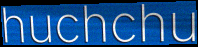
huchchu